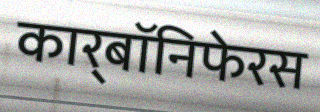
कार्‌बॉनिफेरस